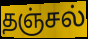
தஞ்சல்